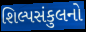
શિલ્પસંકુલનો